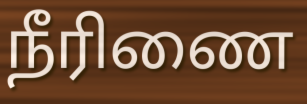
நீரிணை